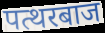
पत्थरबाज